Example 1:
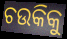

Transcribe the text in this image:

ଚଉକିକୁ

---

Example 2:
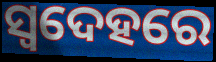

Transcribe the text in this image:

ସ୍ଵଦେହରେ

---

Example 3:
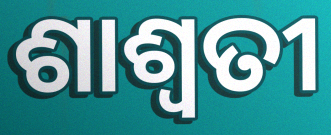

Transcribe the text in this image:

ଶାଶ୍ଵତୀ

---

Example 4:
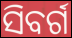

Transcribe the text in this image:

ସିବର୍ଗ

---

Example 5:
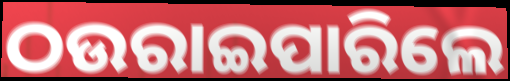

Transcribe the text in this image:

ଠଉରାଇପାରିଲେ